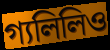
গ্যলিলিও